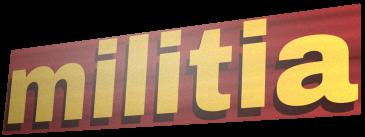
militia